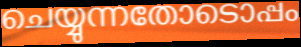
ചെയ്യുന്നതോടൊപ്പം